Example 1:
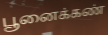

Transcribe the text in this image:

பூனைக்கண்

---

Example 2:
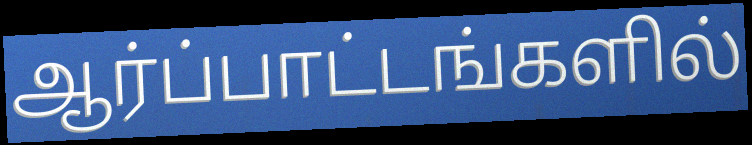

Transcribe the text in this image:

ஆர்ப்பாட்டங்களில்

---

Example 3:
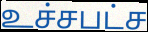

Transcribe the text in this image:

உச்சபட்ச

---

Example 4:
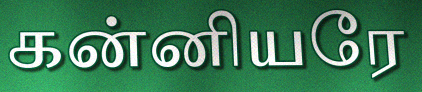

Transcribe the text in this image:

கன்னியரே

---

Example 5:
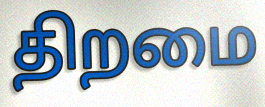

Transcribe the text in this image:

திறமை